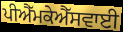
ਪੀਐੱਮਕੇਐੱਸਵਾਈ